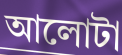
আলোটা